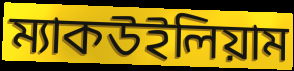
ম্যাকউইলিয়াম